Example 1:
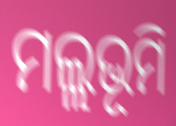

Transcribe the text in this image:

ମଲ୍ଲଭୂମି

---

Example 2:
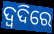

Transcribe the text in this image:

ଦ୍ଵଦିରେ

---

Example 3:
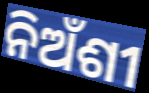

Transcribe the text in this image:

ନିଅଁଶୀ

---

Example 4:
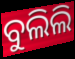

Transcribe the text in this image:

ବୁଲିଲି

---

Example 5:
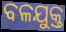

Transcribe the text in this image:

ବଳଯୁକ୍ତ